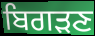
ਬਿਗੜਣ